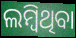
ଲମ୍ବିଥିବା